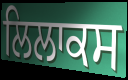
ਲਿਲਾਕਸ